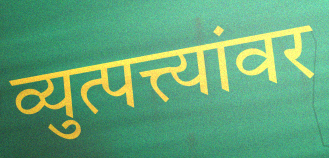
व्युत्पत्त्यांवर